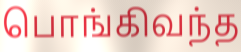
பொங்கிவந்த